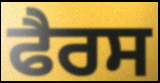
ਫੈਰਸ